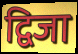
द्विजा